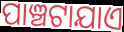
ପାଞ୍ଚଟାଯାଏ